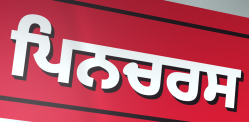
ਪਿਨਚਰਸ